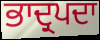
ਭਾਦ੍ਰਪਦਾ